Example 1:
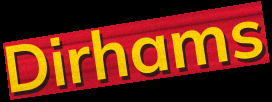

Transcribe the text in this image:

Dirhams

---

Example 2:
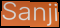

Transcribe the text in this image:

Sanji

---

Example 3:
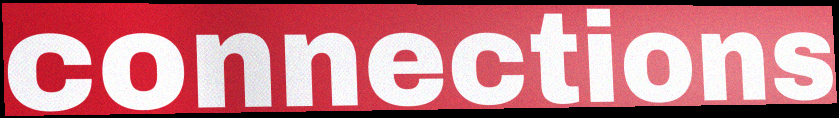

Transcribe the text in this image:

connections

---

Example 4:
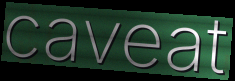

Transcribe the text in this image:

caveat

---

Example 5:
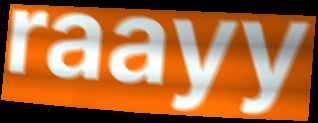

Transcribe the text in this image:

raayy